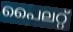
പൈലറ്റ്